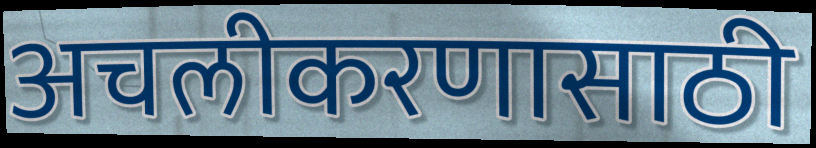
अचलीकरणासाठी